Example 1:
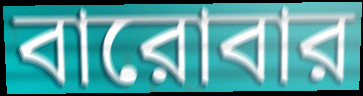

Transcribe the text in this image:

বারোবার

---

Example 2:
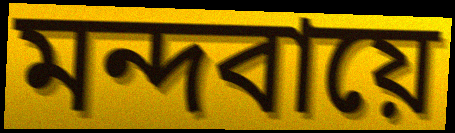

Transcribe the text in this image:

মন্দবায়ে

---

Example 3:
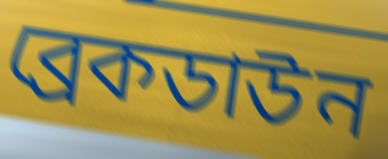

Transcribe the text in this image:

ব্রেকডাউন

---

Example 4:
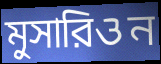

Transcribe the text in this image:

মুসারিওন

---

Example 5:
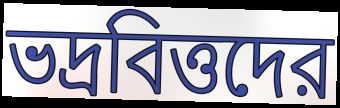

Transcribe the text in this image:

ভদ্রবিত্তদের